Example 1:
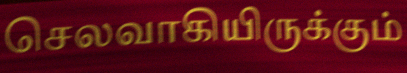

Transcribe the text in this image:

செலவாகியிருக்கும்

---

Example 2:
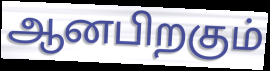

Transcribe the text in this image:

ஆனபிறகும்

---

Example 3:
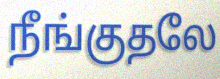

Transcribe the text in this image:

நீங்குதலே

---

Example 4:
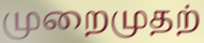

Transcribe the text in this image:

முறைமுதற்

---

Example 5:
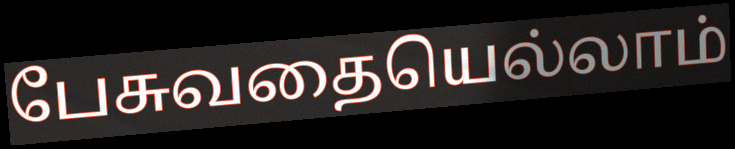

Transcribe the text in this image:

பேசுவதையெல்லாம்